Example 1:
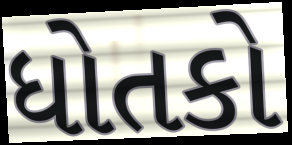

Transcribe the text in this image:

ધોતકો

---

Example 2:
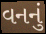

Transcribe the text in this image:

વનનું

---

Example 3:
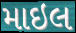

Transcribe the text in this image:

માઇલ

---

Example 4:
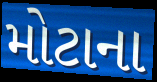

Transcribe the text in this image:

મોટાના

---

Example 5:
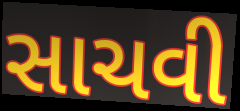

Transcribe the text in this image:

સાચવી